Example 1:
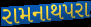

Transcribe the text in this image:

રામનાથપરા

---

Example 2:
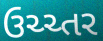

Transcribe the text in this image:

ઉચ્ચ્તર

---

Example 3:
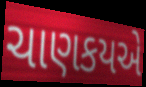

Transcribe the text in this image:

ચાણકયએ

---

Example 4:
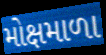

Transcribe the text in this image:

મોક્ષમાળા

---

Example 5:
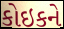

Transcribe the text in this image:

કોઇકને